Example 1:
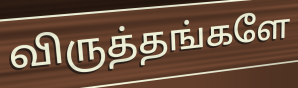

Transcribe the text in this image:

விருத்தங்களே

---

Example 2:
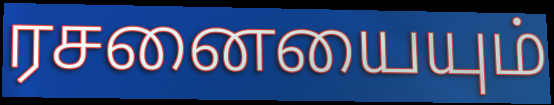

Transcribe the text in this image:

ரசனையையும்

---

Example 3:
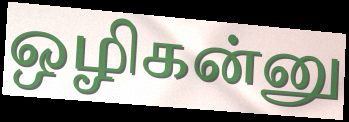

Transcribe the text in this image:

ஒழிகன்னு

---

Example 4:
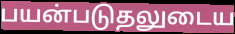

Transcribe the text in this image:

பயன்படுதலுடைய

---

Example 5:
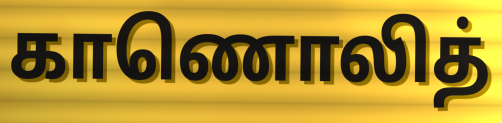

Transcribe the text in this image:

காணொலித்